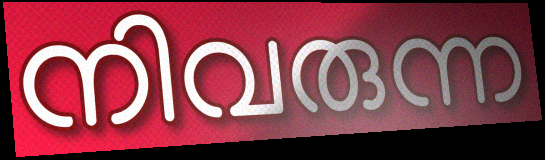
നിവരുന്ന